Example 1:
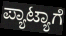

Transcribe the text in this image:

ಪ್ಯಾಟ್ಯಾಗೆ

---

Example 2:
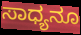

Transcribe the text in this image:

ಸಾಧ್ಯನೂ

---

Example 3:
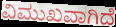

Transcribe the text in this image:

ವಿಮುಖವಾಗಿದೆ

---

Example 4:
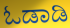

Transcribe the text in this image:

ಓಡಾಡಿ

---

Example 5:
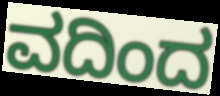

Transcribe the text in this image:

ವದಿಂದ